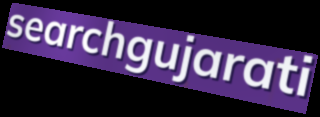
searchgujarati